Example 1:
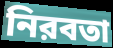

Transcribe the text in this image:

নিরবতা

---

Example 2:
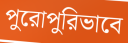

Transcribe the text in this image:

পুরোপুরিভাবে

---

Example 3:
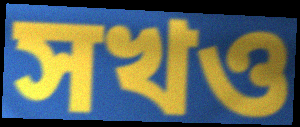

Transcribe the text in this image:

সখও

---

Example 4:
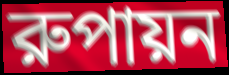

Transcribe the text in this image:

রুপায়ন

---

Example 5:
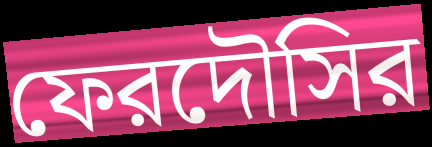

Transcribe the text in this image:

ফেরদৌসির